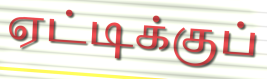
ஏட்டிக்குப்